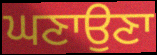
ਘਣਾਉਣਾ